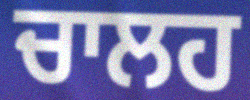
ਚਾਲਹ